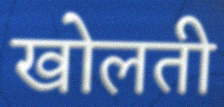
खोलती